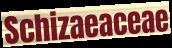
Schizaeaceae